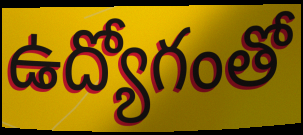
ఉద్యోగంతో